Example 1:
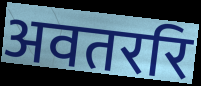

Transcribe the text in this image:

अवतररि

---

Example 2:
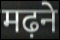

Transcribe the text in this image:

मढ़ने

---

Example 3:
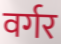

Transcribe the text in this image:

वर्गर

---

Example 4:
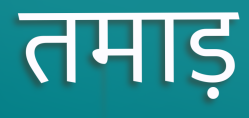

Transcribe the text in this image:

तमाड़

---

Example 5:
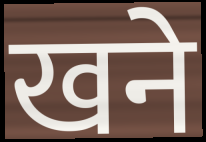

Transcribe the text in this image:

खने